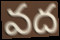
వద